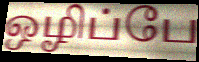
ஒழிப்பே